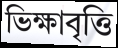
ভিক্ষাবৃত্তি